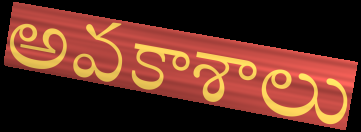
అవకాశాలు